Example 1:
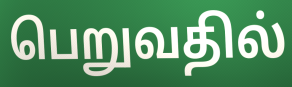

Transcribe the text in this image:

பெறுவதில்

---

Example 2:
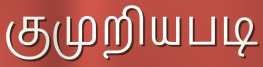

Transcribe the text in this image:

குமுறியபடி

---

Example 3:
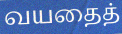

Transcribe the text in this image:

வயதைத்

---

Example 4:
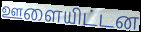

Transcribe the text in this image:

ஊளையிட்டன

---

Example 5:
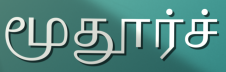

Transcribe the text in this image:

மூதூர்ச்